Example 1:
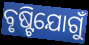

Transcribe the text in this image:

ବୃଷ୍ଟିଯୋଗୁଁ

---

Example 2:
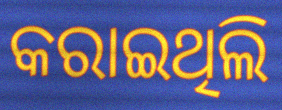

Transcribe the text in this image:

କରାଇଥିଲି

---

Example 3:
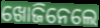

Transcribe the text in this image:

ଖୋଜିନେଲେ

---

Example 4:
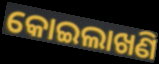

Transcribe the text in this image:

କୋଇଲାଖଣି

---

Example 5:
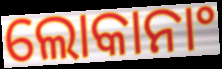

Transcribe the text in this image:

ଲୋକାନାଂ